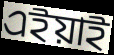
এইয়াই